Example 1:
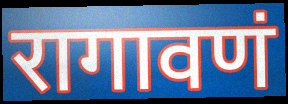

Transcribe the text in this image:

रागावणं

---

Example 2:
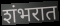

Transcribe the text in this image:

शंभरात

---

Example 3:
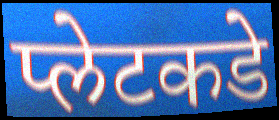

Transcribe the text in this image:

प्लेटकडे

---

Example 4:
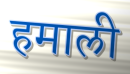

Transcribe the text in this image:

हमाली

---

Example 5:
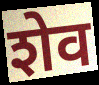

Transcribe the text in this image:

शेव